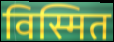
विस्मित